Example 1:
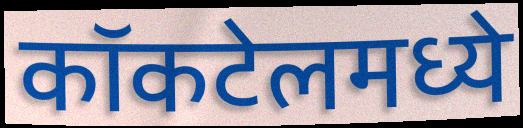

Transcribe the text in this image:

कॉकटेलमध्ये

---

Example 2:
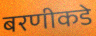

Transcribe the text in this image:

बरणीकडे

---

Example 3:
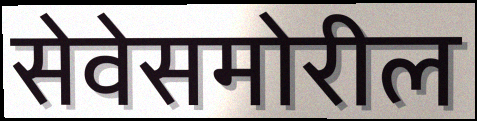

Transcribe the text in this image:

सेवेसमोरील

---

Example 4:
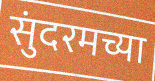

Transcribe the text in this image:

सुंदरमच्या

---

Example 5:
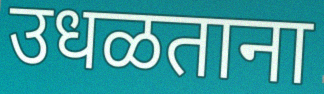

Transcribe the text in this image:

उधळताना